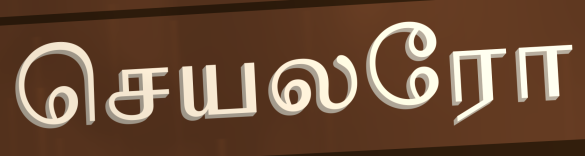
செயலரோ